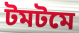
টমটমে